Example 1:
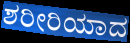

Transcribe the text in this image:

ಶರೀರಿಯಾದ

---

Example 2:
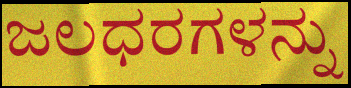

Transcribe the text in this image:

ಜಲಧರಗಳನ್ನು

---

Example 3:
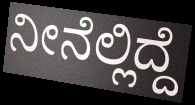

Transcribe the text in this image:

ನೀನೆಲ್ಲಿದ್ದೆ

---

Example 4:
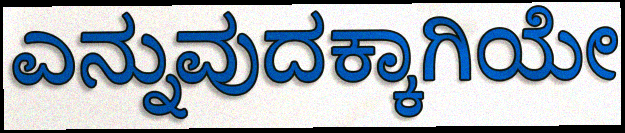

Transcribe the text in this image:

ಎನ್ನುವುದಕ್ಕಾಗಿಯೇ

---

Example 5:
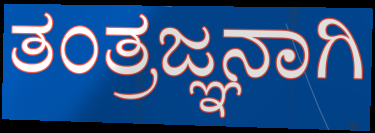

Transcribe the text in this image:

ತಂತ್ರಜ್ಞನಾಗಿ